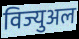
विज्युअल